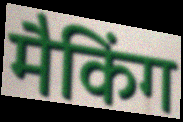
मैकिंग